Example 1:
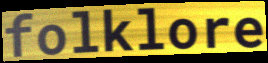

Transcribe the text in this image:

folklore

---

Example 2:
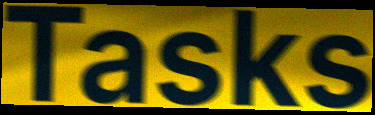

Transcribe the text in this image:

Tasks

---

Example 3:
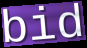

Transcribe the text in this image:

bid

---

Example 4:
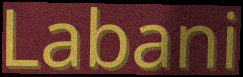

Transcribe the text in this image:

Labani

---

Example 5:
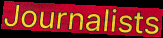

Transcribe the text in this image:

Journalists